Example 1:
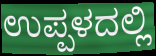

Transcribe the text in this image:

ಉಪ್ಪಳದಲ್ಲಿ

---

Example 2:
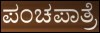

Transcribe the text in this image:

ಪಂಚಪಾತ್ರೆ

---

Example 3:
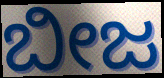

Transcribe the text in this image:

ಬೀಜ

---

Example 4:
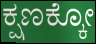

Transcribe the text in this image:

ಕ್ಷಣಕ್ಕೋ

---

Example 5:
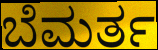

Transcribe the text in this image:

ಬೆಮರ್ತ